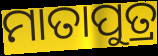
ମାତାପୁତ୍ର